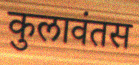
कुलावंतस